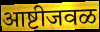
आष्टीजवळ